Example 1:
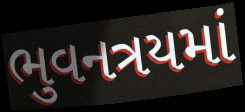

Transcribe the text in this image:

ભુવનત્રયમાં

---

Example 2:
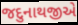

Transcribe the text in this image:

જદુનાથજીએ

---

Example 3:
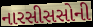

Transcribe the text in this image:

નારસીસસોની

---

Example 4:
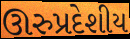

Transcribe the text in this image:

ઊરુપ્રદેશીય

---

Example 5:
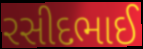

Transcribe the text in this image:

રસીદભાઈ